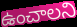
ఉంచాలని